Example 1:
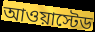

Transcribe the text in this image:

আওয়াস্টেড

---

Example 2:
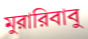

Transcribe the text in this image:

মুরারিবাবু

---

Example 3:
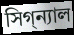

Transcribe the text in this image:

সিগ্‌ন্যাল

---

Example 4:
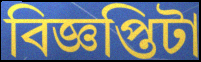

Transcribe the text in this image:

বিজ্ঞপ্তিটা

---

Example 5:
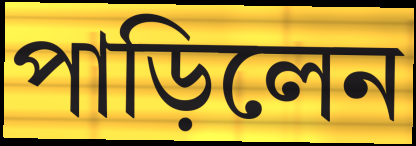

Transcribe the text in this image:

পাড়িলেন